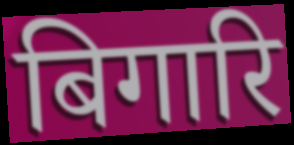
बिगारि